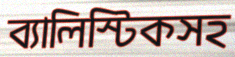
ব্যালিস্টিকসহ